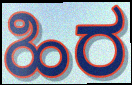
ಹಿರ